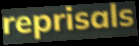
reprisals